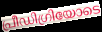
പ്രീഡിഗ്രിയോടെ